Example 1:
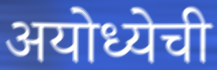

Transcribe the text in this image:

अयोध्येची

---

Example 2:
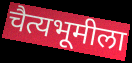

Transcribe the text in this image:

चैत्यभूमीला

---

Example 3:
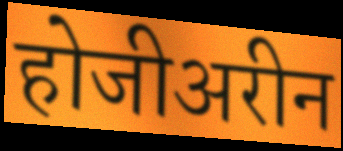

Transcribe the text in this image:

होजीअरीन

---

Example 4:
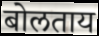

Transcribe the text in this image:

बोलताय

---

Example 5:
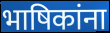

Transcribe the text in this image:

भाषिकांना